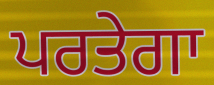
ਪਰਤੇਗਾ